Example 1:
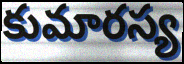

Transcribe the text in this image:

కుమారస్య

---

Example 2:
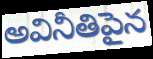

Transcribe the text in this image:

అవినీతిపైన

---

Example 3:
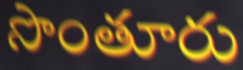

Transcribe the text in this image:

సొంతూరు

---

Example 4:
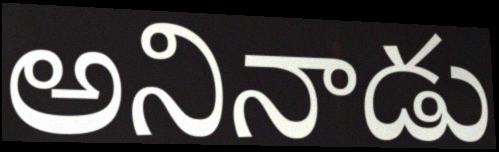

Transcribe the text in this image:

అనినాడు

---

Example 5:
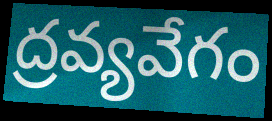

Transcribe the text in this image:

ద్రవ్యవేగం